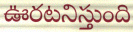
ఊరటనిస్తుంది